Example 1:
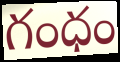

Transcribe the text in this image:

గంధం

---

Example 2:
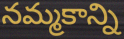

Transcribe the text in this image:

నమ్మకాన్ని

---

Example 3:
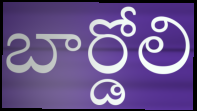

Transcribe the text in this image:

బార్డోలి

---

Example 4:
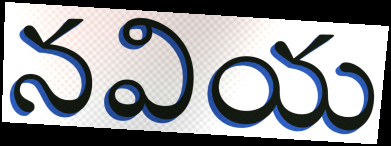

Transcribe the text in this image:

నవియ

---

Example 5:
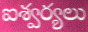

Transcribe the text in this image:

ఐశ్వర్యలు